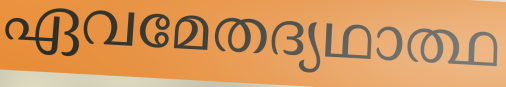
ഏവമേതദ്യഥാത്ഥ